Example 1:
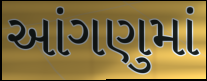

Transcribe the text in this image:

આંગણુમાં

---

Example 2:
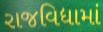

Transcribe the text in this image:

રાજવિદ્યામાં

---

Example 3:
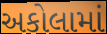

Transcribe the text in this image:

અકોલામાં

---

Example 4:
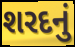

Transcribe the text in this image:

શરદનું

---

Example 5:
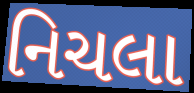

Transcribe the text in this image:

નિચલા